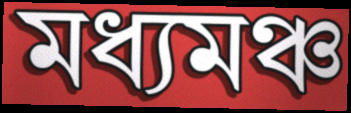
মধ্যমঞ্চ